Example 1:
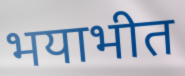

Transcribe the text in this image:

भयाभीत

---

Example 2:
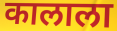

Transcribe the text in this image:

कालाला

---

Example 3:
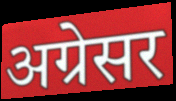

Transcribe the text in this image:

अग्रेसर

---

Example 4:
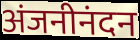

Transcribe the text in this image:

अंजनीनंदन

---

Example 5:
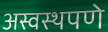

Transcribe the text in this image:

अस्वस्थपणे